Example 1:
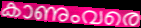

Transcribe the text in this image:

കാണുംവരെ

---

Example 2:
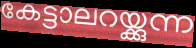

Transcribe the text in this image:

കേട്ടാലറയ്ക്കുന്ന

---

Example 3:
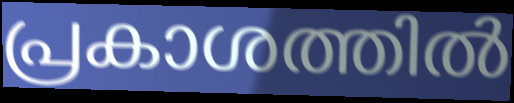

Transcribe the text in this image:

പ്രകാശത്തിൽ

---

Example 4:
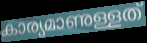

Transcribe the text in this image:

കാര്യമാണുള്ളത്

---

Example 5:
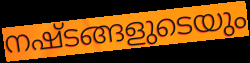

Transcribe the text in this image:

നഷ്ടങ്ങളുടെയും